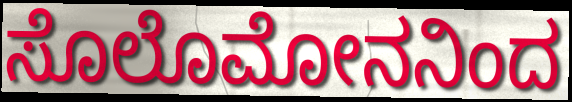
ಸೊಲೊಮೋನನಿಂದ